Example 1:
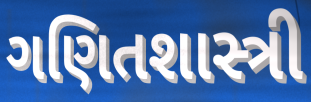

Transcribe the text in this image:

ગણિતશાસ્ત્રી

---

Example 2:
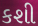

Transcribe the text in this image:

કશી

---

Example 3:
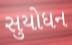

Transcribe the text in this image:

સુયોધન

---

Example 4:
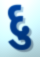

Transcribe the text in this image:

દુ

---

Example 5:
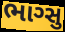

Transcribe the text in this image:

ભાગ્સુ